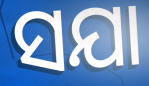
ସଯା